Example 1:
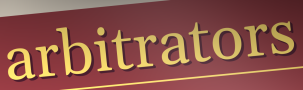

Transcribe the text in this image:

arbitrators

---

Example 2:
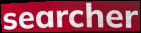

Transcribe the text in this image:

searcher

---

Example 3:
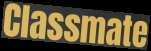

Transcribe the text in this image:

Classmate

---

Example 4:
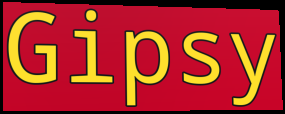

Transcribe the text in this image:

Gipsy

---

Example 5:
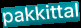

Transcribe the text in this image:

pakkittal